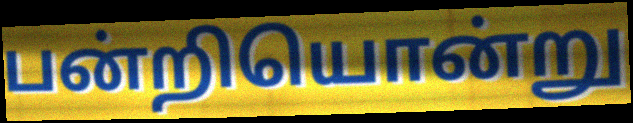
பன்றியொன்று